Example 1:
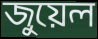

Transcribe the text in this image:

জুয়েল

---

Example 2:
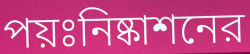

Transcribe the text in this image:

পয়ঃনিষ্কাশনের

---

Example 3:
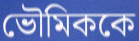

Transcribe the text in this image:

ভৌমিককে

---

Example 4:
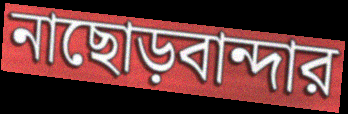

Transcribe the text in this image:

নাছোড়বান্দার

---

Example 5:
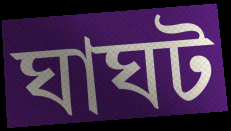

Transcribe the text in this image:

ঘাঘট